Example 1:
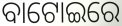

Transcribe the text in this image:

ବାଟୋଇରେ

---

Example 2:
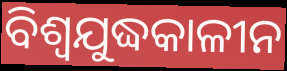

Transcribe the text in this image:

ବିଶ୍ୱଯୁଦ୍ଧକାଳୀନ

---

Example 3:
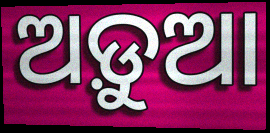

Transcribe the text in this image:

ଅଡ଼ୁଆ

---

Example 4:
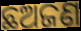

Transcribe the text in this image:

ଛଅଜଣ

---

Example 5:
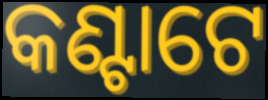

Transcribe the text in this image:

କଣ୍ଟାଟେ